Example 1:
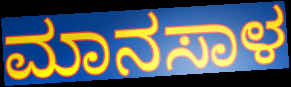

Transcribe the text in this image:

ಮಾನಸಾಳ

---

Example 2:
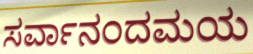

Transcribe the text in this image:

ಸರ್ವಾನಂದಮಯ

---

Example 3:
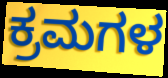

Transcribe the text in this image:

ಕ್ರಮಗಳ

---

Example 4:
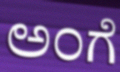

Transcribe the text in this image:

ಅಂಗೆ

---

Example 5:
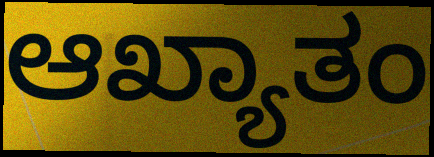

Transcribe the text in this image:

ಆಖ್ಯಾತಂ